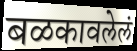
बळकावलेलं